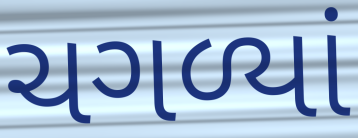
ચગળ્યાં